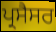
ਪ੍ਰਸੈਸਰ